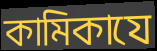
কামিকাযে